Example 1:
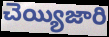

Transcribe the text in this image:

చెయ్యిజారి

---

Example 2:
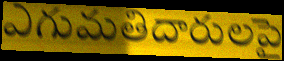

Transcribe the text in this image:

ఎగుమతిదారులపై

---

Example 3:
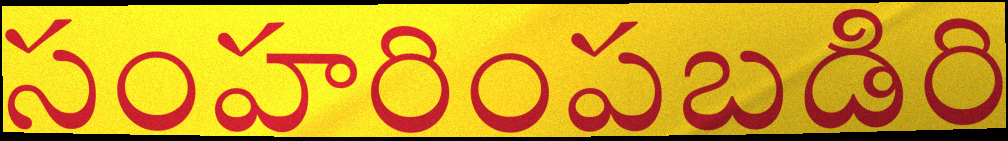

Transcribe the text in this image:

సంహరింపబడిరి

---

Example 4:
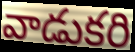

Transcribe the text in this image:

వాడుకరి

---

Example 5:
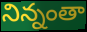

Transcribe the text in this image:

నిన్నంతా